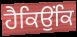
ਹੈਕਿਉਂਕਿ